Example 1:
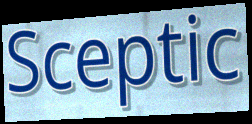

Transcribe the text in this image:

Sceptic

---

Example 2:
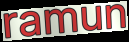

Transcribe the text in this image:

ramun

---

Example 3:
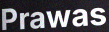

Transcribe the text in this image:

Prawas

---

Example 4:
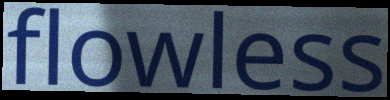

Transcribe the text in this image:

flowless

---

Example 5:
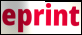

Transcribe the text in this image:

eprint